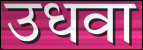
उधवा